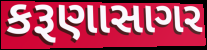
કરૂણાસાગર